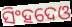
ସିଂହଦେଓ